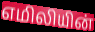
எமிலியின்